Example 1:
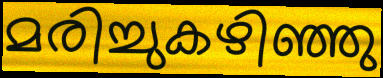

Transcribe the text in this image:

മരിച്ചുകഴിഞ്ഞു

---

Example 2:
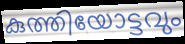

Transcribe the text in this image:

കുത്തിയോട്ടവും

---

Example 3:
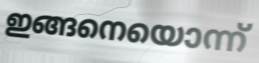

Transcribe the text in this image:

ഇങ്ങനെയൊന്ന്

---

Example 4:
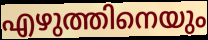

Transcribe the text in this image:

എഴുത്തിനെയും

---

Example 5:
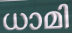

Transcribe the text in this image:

ധാമി